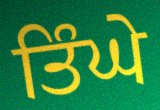
ਤਿੰਘੇ